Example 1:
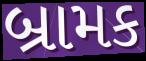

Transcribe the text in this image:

બ્રામક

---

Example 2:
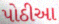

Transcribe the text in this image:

પોઠીઆ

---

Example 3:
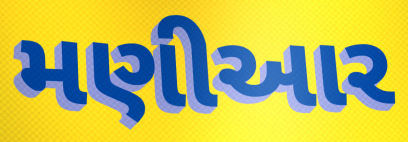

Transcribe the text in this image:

મણીઆર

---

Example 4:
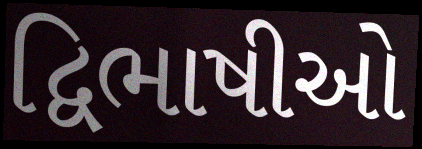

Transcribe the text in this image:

દ્વિભાષીઓ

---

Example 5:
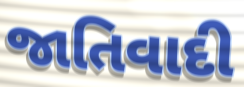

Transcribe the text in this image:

જાતિવાદી